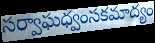
సర్వాఘధ్వంసకమాద్యం